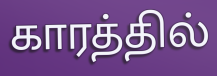
காரத்தில்